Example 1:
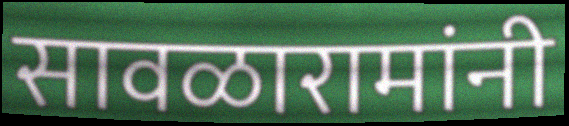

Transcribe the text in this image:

सावळारामांनी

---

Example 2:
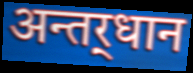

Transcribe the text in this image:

अन्तर्धान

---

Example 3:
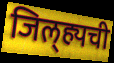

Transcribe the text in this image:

जिल्ह्यची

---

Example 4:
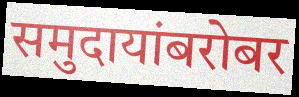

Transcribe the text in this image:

समुदायांबरोबर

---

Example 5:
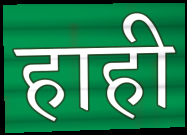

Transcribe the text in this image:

हाही